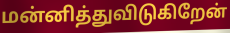
மன்னித்துவிடுகிறேன்